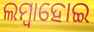
ଲମ୍ୱାହୋଇ